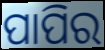
ପାପିର